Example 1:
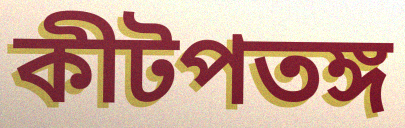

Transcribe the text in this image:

কীটপতঙ্গ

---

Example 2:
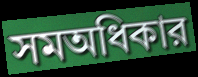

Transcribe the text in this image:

সমঅধিকার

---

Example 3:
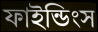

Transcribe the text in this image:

ফাইন্ডিংস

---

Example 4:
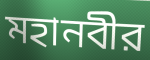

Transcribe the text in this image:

মহানবীর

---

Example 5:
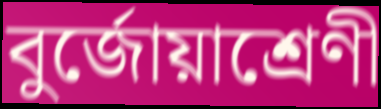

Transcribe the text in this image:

বুর্জোয়াশ্রেণী